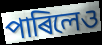
পাৰিলেও